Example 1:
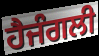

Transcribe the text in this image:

ਹੈਜੰਗਲੀ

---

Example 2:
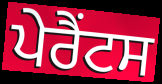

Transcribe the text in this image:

ਪੇਰੈਂਟਸ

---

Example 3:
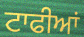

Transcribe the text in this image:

ਟਾਫੀਆਂ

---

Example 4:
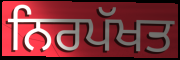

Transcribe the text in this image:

ਨਿਰਪੱਖਤ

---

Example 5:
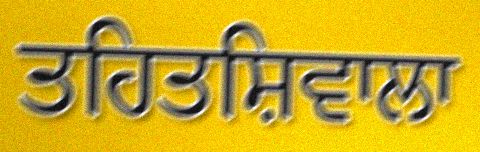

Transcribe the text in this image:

ਤਹਿਤਸ਼ਿਵਾਲਾ